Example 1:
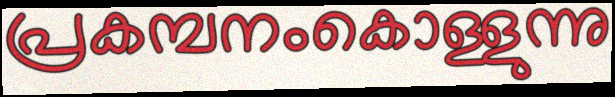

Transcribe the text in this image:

പ്രകമ്പനംകൊള്ളുന്നു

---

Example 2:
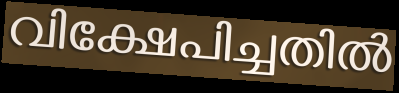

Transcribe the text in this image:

വിക്ഷേപിച്ചതിൽ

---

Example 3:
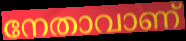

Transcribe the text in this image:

നേതാവാണ്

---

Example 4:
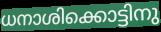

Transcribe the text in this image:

ധനാശിക്കൊട്ടിനു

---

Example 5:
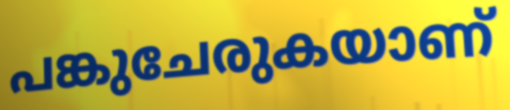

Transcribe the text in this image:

പങ്കുചേരുകയാണ്